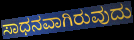
ಸಾಧನವಾಗಿರುವುದು